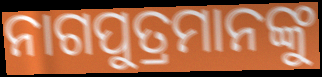
ନାଗପୁତ୍ରମାନଙ୍କୁ